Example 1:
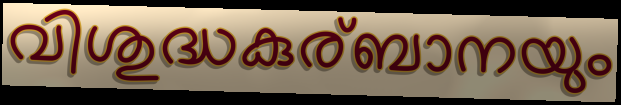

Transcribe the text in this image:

വിശുദ്ധകുര്ബാനയും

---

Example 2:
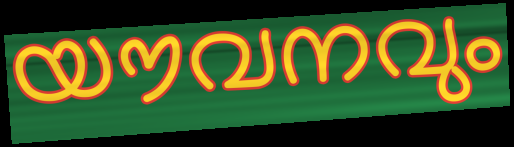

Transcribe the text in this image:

യൗവനവും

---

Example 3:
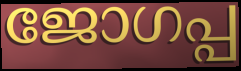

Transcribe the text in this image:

ജോഗപ്പ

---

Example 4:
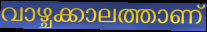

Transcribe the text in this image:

വാഴ്ചക്കാലത്താണ്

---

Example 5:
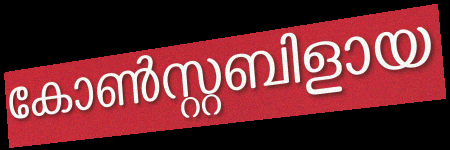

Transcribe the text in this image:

കോൺസ്റ്റബിളായ